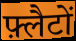
फ़्लैटों